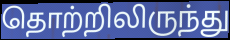
தொற்றிலிருந்து